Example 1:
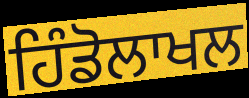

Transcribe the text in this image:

ਹਿੰਡੋਲਾਖਲ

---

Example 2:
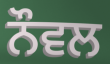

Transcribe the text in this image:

ਨੌਵਲ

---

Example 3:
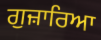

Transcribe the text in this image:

ਗੁਜ਼ਾਰਿਆ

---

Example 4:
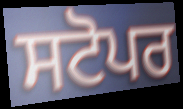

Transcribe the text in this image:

ਸਟੋਪਰ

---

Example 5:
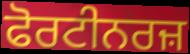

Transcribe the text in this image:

ਫੋਰਟੀਨਰਜ਼